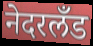
नेदरलँड